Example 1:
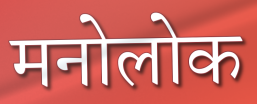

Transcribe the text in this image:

मनोलोक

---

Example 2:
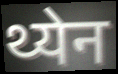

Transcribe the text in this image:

थ्येन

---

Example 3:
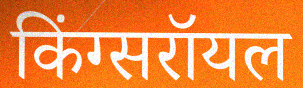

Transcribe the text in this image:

किंग्सरॉयल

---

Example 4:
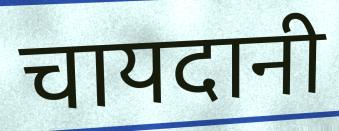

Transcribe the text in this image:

चायदानी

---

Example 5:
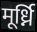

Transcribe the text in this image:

मूर्ध्नि